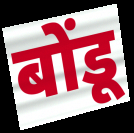
बोंडू